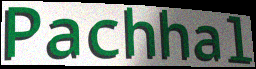
Pachhal